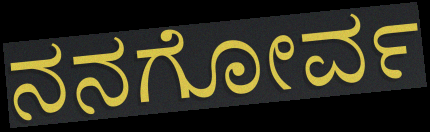
ನನಗೋರ್ವ